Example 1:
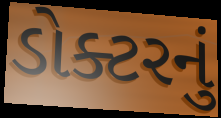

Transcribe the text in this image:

ડોક્ટરનું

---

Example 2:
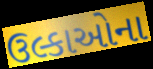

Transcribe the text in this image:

ઉલ્કાઓના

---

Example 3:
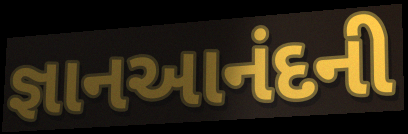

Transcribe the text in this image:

જ્ઞાનઆનંદની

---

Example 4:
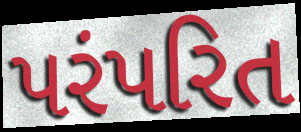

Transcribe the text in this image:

પરંપરિત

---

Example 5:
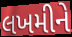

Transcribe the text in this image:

લખમીને